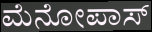
ಮೆನೋಪಾಸ್